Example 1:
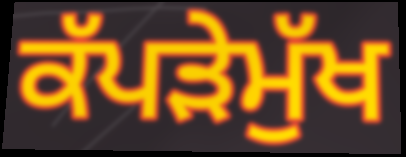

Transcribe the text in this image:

ਕੱਪੜੇਮੁੱਖ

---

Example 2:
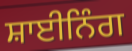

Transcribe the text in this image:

ਸ਼ਾਈਨਿੰਗ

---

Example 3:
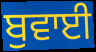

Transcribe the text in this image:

ਬੁਵਾਈ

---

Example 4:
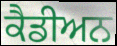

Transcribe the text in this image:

ਕੈਡੀਅਨ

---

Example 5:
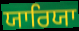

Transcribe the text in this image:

ਯਾਰਿਯਾ